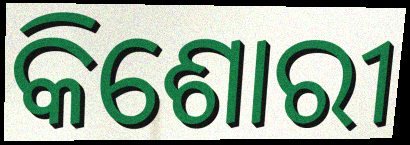
କିଶୋରୀ